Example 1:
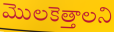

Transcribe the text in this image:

మొలకెత్తాలని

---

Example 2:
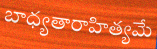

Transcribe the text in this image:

బాధ్యతారాహిత్యమే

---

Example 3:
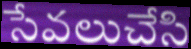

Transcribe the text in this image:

సేవలుచేసి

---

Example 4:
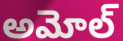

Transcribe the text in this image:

అమోల్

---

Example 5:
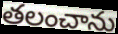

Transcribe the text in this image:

తలంచాను